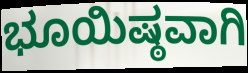
ಭೂಯಿಷ್ಠವಾಗಿ